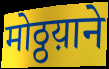
मोठ्ठय़ाने